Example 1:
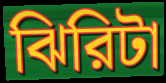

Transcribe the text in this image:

ঝিরিটা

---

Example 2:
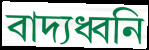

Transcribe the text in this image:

বাদ্যধ্বনি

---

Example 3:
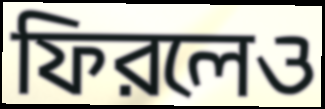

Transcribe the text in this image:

ফিরলেও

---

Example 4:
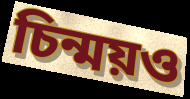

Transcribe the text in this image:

চিন্ময়ও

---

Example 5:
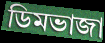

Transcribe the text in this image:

ডিমভাজা